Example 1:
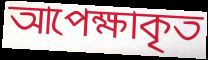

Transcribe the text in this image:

আপেক্ষাকৃত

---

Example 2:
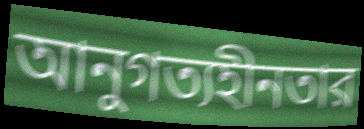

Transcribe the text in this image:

আনুগত্যহীনতার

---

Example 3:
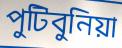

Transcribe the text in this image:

পুটিবুনিয়া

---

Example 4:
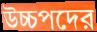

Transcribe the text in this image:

উচ্চপদের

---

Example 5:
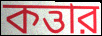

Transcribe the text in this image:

কত্তার